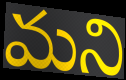
మని